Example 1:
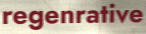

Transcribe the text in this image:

regenrative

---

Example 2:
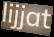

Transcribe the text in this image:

lijjat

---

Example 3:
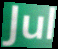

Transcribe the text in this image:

Jul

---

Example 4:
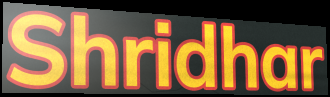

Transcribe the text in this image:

Shridhar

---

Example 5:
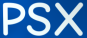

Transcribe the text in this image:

PSX